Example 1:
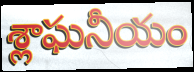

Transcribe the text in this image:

శ్లాఘనీయం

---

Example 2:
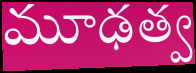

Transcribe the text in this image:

మూఢత్వ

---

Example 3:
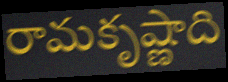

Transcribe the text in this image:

రామకృష్ణాది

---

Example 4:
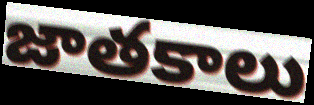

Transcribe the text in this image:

జాతకాలు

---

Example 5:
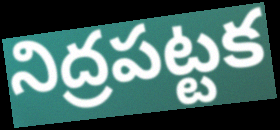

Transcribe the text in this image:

నిద్రపట్టక